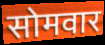
सोमवार